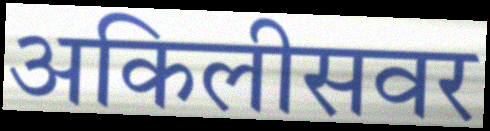
अकिलीसवर